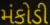
મંકોડી